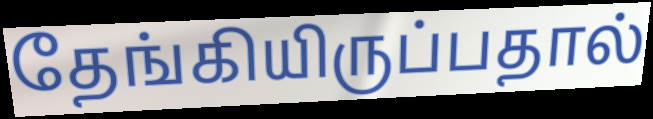
தேங்கியிருப்பதால்